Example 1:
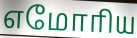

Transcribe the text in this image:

எமோரிய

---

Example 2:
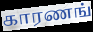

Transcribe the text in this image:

காரணங்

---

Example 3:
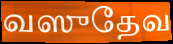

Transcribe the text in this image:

வஸுதேவ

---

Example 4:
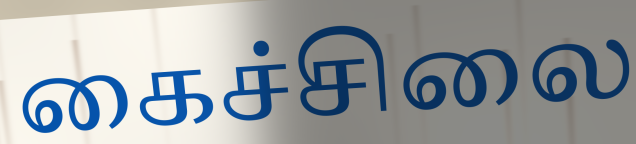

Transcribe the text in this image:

கைச்சிலை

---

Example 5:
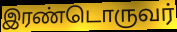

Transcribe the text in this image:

இரண்டொருவர்